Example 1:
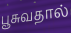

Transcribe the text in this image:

பூசுவதால்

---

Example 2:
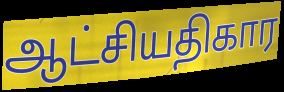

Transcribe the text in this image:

ஆட்சியதிகார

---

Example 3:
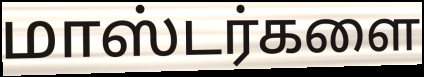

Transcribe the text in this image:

மாஸ்டர்களை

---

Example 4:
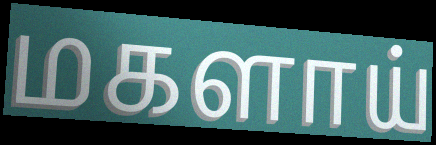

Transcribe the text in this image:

மகளாய்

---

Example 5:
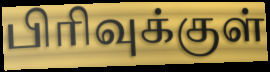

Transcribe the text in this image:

பிரிவுக்குள்